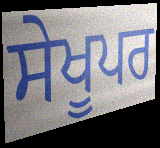
ਸੇਖੂਪਰ